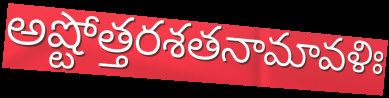
అష్టోత్తరశతనామావళిః